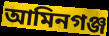
আমিনগঞ্জ